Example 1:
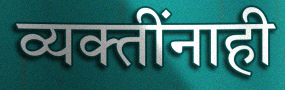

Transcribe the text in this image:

व्यक्तींनाही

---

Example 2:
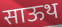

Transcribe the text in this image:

साऊथ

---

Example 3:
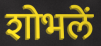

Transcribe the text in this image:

शोभलें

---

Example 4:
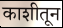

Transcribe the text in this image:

काशीतून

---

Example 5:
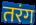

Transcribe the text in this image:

तरंग